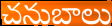
చనుబాలు